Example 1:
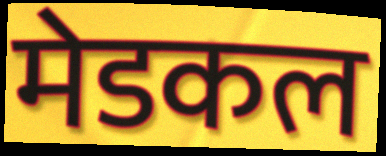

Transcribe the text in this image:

मेडकल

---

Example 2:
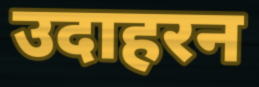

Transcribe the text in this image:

उदाहरन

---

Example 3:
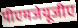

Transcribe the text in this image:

पीएमजेयूजीए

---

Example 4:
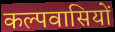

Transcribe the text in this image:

कल्पवासियों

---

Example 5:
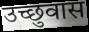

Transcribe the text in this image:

उच्छुवास